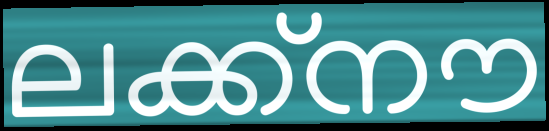
ലക്ക്നൗ